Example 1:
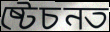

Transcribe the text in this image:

ষ্টেচনত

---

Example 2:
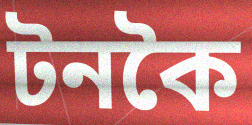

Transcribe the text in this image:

টনকৈ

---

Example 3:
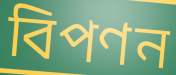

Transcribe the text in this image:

বিপণন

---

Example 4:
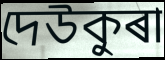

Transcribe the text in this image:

দেউকুৰা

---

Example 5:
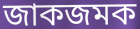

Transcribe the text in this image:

জাকজমক